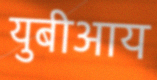
युबीआय